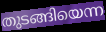
തുടങ്ങിയെന്ന